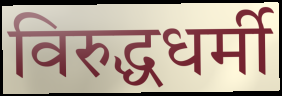
विरुद्धधर्मी